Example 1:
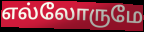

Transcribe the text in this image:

எல்லோருமே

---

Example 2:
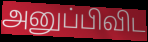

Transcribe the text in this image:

அனுப்பிவிட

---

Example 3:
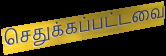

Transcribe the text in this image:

செதுக்கப்பட்டவை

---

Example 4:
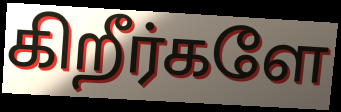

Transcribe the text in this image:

கிறீர்களே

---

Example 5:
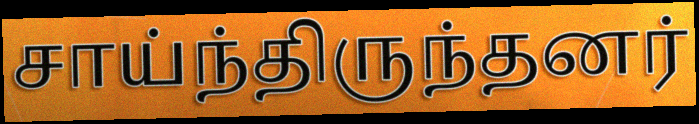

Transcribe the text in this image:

சாய்ந்திருந்தனர்